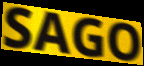
SAGO